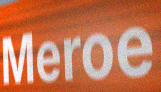
Meroe